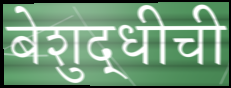
बेशुद्धीची